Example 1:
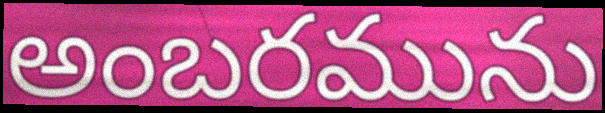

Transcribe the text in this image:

అంబరమును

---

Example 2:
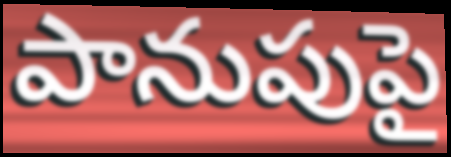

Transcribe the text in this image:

పానుపుపై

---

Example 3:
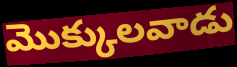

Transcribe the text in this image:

మొక్కులవాడు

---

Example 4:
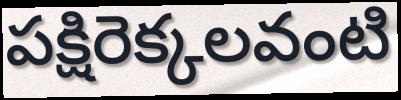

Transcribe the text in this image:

పక్షిరెక్కలవంటి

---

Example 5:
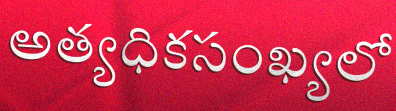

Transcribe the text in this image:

అత్యధికసంఖ్యలో